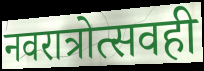
नवरात्रोत्सवही